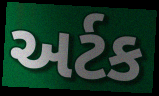
અર્ટક